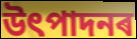
উৎপাদনৰ